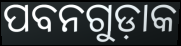
ପବନଗୁଡ଼ାକ